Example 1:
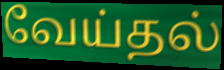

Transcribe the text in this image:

வேய்தல்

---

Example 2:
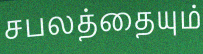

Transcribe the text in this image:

சபலத்தையும்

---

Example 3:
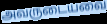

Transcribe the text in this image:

அவருடையவை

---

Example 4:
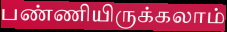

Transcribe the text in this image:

பண்ணியிருக்கலாம்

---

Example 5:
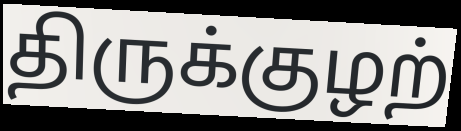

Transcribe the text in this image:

திருக்குழற்